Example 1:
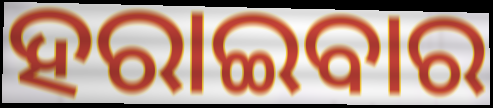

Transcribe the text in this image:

ହରାଇବାର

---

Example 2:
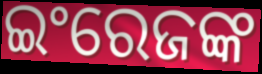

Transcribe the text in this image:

ଇଂରେଜଙ୍କ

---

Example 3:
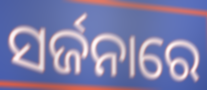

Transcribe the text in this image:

ସର୍ଜନାରେ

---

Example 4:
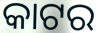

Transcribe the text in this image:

କାଟର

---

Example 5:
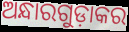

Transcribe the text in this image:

ଅନ୍ଧାରଗୁଡ଼ାକର